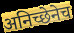
अनिच्छेनेच